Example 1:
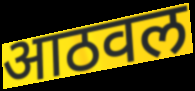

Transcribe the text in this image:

आठवल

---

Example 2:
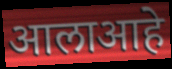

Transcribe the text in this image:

आलाआहे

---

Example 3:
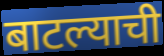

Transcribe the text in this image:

बाटल्याची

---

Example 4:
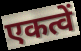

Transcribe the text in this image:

एकत्वें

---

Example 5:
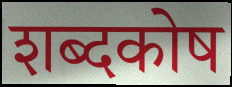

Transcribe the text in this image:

शब्दकोष